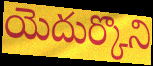
యెదుర్కొని